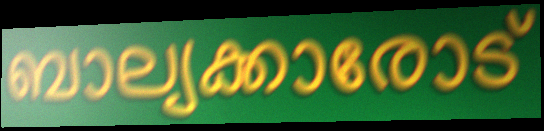
ബാല്യക്കാരോട്